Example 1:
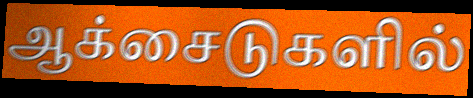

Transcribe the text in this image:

ஆக்சைடுகளில்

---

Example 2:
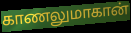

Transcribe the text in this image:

காணலுமாகான்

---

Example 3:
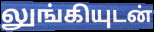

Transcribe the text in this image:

லுங்கியுடன்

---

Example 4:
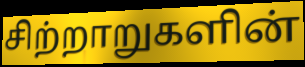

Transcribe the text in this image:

சிற்றாறுகளின்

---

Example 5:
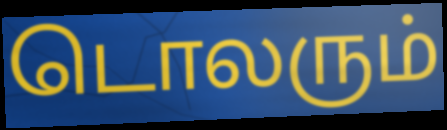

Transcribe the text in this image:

டொலரும்